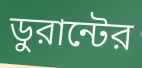
ডুরান্টের